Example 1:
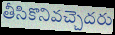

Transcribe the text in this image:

తీసికొనివచ్చెదరు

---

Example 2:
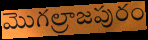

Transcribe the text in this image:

మొగల్రాజపురం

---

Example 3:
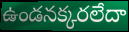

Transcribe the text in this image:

ఉండనక్కరలేదా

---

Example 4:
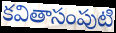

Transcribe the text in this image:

కవితాసంపుటి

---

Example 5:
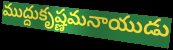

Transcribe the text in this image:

ముద్దుకృష్ణమనాయుడు